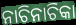
ନାଚିନାଚିକା